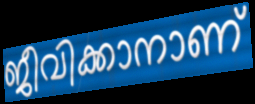
ജീവിക്കാനാണ്